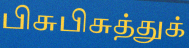
பிசுபிசுத்துக்